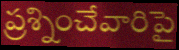
ప్రశ్నించేవారిపై